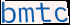
bmtc